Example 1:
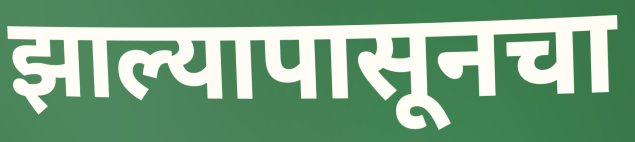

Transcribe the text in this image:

झाल्यापासूनचा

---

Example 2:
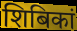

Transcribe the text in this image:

शिबिकां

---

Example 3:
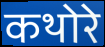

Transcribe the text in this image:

कथोरे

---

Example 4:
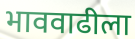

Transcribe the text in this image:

भाववाढीला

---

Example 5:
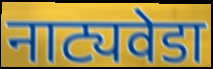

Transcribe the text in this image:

नाट्यवेडा